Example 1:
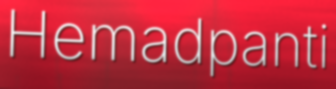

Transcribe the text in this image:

Hemadpanti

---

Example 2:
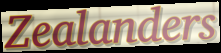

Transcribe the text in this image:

Zealanders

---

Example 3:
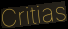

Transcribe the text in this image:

Critias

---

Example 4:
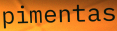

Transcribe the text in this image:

pimentas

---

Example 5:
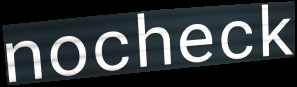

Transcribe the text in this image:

nocheck